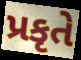
પ્રકૃતે